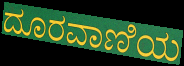
ದೂರವಾಣಿಯ